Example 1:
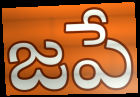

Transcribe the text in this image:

జపే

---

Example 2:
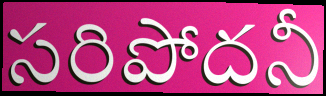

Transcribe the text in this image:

సరిపోదనీ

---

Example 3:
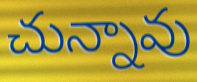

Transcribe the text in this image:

చున్నావు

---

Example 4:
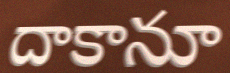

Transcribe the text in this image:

దాకానూ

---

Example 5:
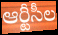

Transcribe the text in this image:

ఆర్టీసీల